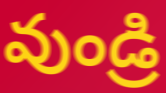
వుండ్రి